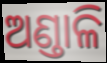
ଅଣ୍ଡାଳି